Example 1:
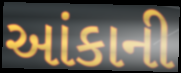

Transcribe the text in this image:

આંકાની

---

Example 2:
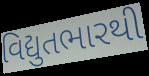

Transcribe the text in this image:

વિદ્યુતભારથી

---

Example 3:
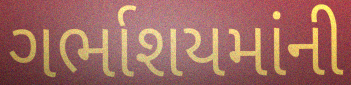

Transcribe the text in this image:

ગર્ભાશયમાંની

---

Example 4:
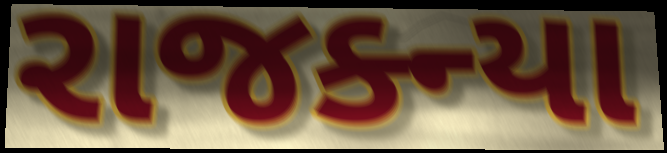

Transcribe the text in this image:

રાજક્ન્યા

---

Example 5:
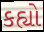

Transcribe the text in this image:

કહ્યો